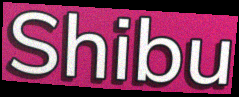
Shibu